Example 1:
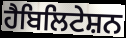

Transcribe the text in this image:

ਹੈਬਿਲਿਟੇਸ਼ਨ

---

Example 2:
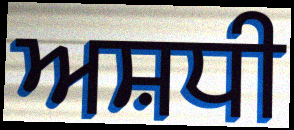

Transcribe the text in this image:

ਅਸ਼ਧੀ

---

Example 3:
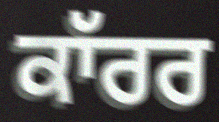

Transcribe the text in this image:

ਕਾੱਰਰ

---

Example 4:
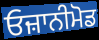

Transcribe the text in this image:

ਓਜ਼ਾਨੀਮੋਡ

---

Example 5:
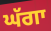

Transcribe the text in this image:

ਘੱਗਾ